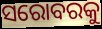
ସରୋବରକୁ